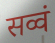
सव्वं